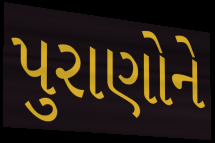
પુરાણોને